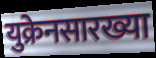
युक्रेनसारख्या